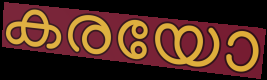
കരയോ